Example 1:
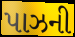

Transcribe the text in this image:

પાઝની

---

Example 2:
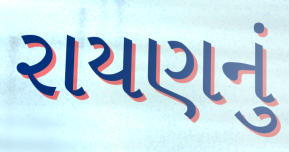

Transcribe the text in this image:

રાયણનું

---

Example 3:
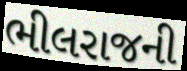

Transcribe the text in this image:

ભીલરાજની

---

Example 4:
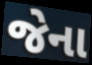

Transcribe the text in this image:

જેના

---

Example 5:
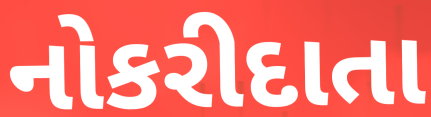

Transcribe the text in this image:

નોકરીદાતા